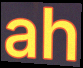
ah